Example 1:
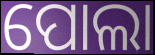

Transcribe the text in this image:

ପୋଲା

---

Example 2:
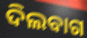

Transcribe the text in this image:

ଦିଲବାଗ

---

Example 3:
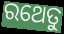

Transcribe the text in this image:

ରଥେତୁ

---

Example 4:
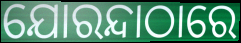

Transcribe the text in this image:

ଯୋରନ୍ଦାଠାରେ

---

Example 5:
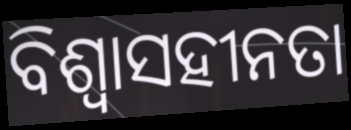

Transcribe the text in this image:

ବିଶ୍ୱାସହୀନତା